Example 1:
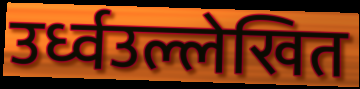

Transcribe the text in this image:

उर्ध्वउल्लेखित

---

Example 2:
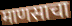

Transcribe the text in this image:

माणसाचा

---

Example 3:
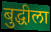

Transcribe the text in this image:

बुद्धीला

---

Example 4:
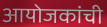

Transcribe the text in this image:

आयोजकांची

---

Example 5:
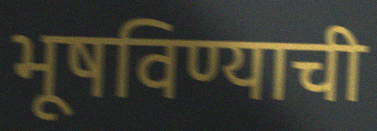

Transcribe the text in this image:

भूषविण्याची